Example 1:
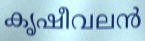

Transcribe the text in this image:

കൃഷീവലൻ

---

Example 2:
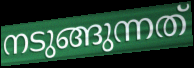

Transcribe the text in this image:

നടുങ്ങുന്നത്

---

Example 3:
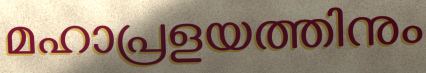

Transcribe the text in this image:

മഹാപ്രളയത്തിനും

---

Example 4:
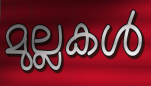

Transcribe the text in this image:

മുല്ലകൾ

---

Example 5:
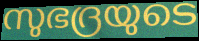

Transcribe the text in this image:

സുഭദ്രയുടെ